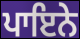
ਪਾਇਨੇ